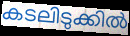
കടലിടുക്കിൽ